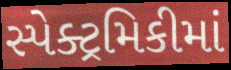
સ્પેક્ટ્રમિકીમાં